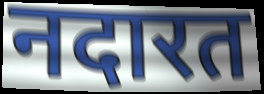
नदारत